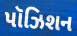
પૉઝિશન